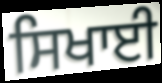
ਸਿਖਾਈ